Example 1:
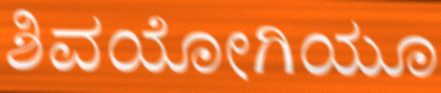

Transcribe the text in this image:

ಶಿವಯೋಗಿಯೂ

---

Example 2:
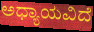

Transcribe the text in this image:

ಅಧ್ಯಾಯವಿದೆ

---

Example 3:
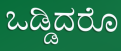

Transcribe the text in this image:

ಒಡ್ಡಿದರೊ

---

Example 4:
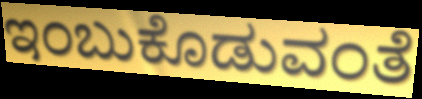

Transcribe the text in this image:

ಇಂಬುಕೊಡುವಂತೆ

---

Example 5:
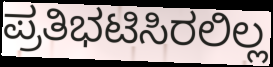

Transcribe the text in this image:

ಪ್ರತಿಭಟಿಸಿರಲಿಲ್ಲ